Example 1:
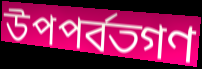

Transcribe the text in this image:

উপপর্বতগণ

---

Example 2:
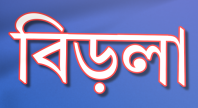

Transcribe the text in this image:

বিড়লা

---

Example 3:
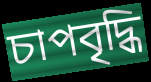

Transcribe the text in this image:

চাপবৃদ্ধি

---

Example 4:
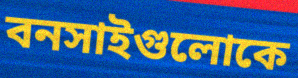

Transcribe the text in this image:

বনসাইগুলোকে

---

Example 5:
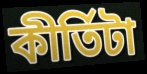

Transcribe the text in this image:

কীর্তিটা